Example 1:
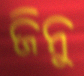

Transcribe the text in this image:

ଜିନୁ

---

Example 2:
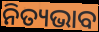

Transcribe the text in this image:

ନିତ୍ୟଭାବ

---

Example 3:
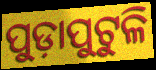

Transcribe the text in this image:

ପୁଡ଼ାପୁଟୁଳି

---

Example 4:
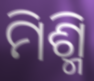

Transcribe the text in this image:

ମିଶ୍ମି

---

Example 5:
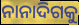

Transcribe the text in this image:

ନାନାଦିଗକୁ